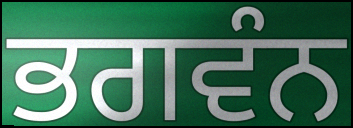
ਭਗਵੰਨ